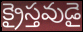
క్రైస్తవుడై